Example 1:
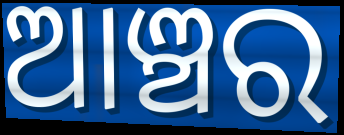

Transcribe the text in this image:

ଆଞ୍ଚର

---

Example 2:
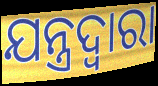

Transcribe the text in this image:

ଯନ୍ତ୍ରଦ୍ବାରା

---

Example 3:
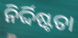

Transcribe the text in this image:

ନିର୍ଦ୍ଦିଷ୍ଟତା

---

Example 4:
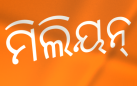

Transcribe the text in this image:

ମିଲିୟନ୍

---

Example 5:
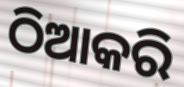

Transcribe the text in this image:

ଠିଆକରି